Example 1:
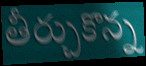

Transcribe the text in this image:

తీర్చుకొన్న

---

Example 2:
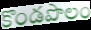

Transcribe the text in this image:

కొండపొలం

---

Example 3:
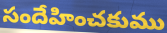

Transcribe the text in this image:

సందేహించకుము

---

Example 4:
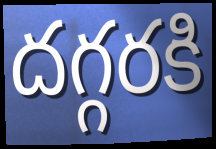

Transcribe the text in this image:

దగ్గరకి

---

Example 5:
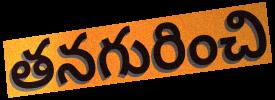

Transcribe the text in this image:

తనగురించి